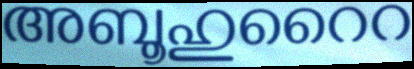
അബൂഹുറൈറ